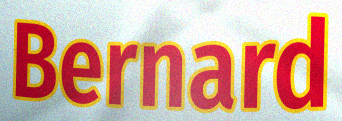
Bernard